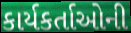
કાર્યકર્તાઓની